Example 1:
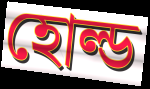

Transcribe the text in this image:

হোল্ড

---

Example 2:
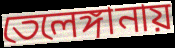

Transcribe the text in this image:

তেলেঙ্গানায়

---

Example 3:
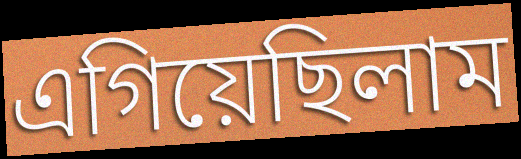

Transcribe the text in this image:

এগিয়েছিলাম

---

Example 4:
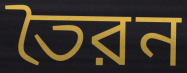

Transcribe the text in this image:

তৈরন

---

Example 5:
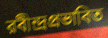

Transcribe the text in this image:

রবীন্দ্রপ্রভাবিত